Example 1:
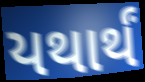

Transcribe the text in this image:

યથાર્થં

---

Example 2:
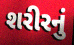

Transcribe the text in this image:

શરીરનું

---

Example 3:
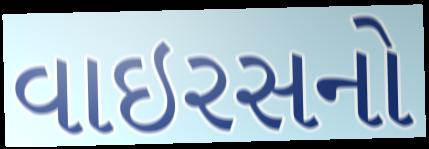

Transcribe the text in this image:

વાઇરસનો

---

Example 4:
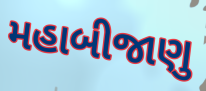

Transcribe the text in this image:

મહાબીજાણુ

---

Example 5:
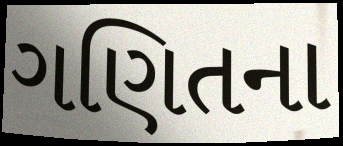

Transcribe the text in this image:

ગણિતના